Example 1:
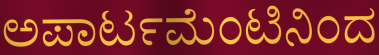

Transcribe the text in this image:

ಅಪಾರ್ಟಮೆಂಟಿನಿಂದ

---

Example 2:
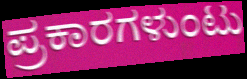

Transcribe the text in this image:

ಪ್ರಕಾರಗಳುಂಟು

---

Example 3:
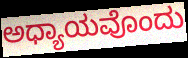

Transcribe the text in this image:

ಅಧ್ಯಾಯವೊಂದು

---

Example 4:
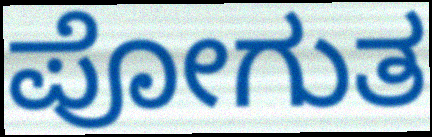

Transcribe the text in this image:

ಪೋಗುತ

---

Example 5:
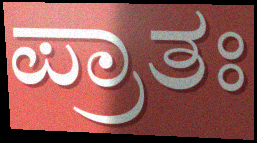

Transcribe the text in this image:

ಪ್ರಾತಃ